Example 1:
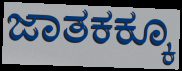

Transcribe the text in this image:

ಜಾತಕಕ್ಕೂ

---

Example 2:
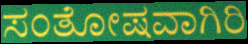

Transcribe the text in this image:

ಸಂತೋಷವಾಗಿರಿ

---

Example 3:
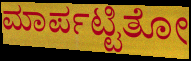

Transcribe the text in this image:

ಮಾರ್ಪಟ್ಟಿತೋ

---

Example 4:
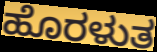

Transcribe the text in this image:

ಹೊರಳುತ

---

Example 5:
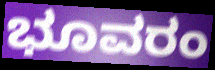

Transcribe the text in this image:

ಭೂವರಂ